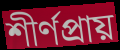
শীর্ণপ্রায়